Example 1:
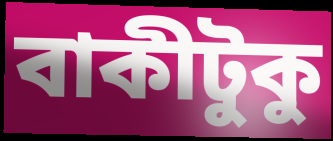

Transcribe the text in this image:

বাকীটুকু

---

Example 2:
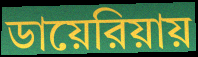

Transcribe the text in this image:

ডায়েরিয়ায়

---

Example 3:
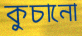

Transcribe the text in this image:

কুচানো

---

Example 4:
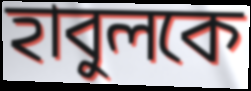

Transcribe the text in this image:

হাবুলকে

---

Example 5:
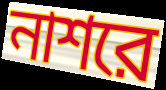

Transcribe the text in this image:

নাশরে